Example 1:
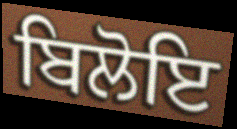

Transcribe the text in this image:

ਬਿਲੋਇ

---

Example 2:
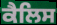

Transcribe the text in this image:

ਕੈਲਿਸ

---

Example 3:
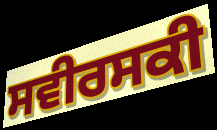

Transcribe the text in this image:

ਸਵੀਰਸਕੀ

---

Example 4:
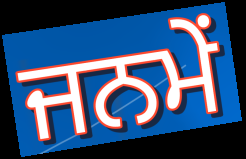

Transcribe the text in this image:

ਜਨਮੇਂ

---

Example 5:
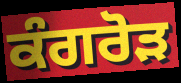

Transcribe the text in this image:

ਕੰਗਰੋੜ